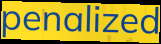
penalized